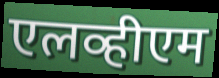
एलव्हीएम